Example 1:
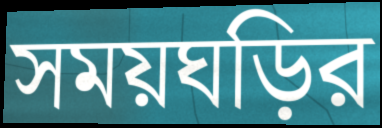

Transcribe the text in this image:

সময়ঘড়ির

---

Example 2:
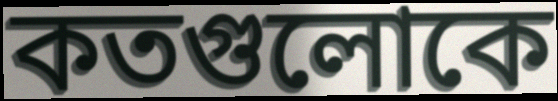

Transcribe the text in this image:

কতগুলোকে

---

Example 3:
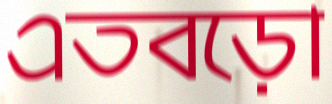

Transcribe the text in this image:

এতবড়ো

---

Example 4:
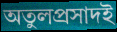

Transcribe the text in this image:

অতুলপ্রসাদই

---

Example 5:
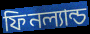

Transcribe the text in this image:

ফিনল্যান্ড